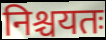
निश्चयतः